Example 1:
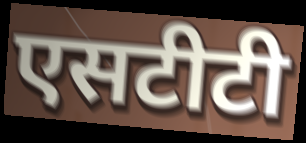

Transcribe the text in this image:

एसटीटी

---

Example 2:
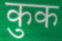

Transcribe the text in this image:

कुक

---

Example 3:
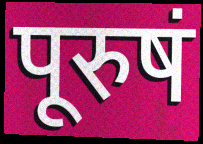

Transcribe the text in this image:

पूरुषं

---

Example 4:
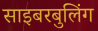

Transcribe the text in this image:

साइबरबुलिंग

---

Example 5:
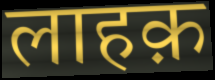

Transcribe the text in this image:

लाहक़